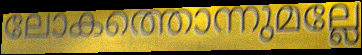
ലോകത്തൊന്നുമല്ലേ